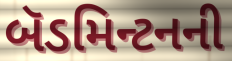
બૅડમિન્ટનની